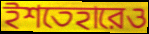
ইশতেহারেও